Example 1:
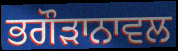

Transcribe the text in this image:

ਭਗੌੜਾਨਾਵਲ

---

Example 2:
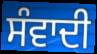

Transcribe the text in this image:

ਸੰਵਾਦੀ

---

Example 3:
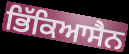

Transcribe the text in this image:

ਭਿੱਕਿਆਸੈਨ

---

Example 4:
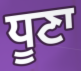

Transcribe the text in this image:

ਧੂਣਾ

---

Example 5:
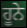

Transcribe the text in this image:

ਹੂਨੇ